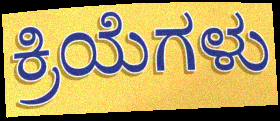
ಕ್ರಿಯೆಗಳು